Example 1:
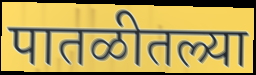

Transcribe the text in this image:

पातळीतल्या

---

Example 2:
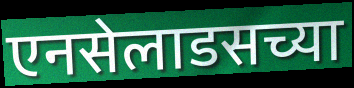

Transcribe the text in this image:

एनसेलाडसच्या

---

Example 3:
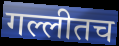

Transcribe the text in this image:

गल्लीतच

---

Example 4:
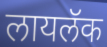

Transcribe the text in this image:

लायलॅक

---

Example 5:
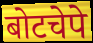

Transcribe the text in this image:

बोटचेपे